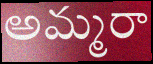
అమ్మరా